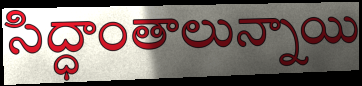
సిద్ధాంతాలున్నాయి